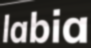
labia